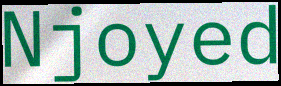
Njoyed